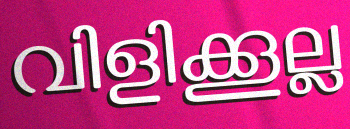
വിളിക്കൂല്ല